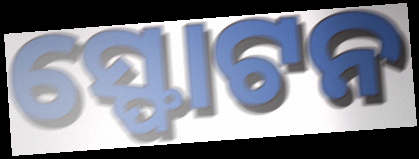
ସ୍ଫୋଟନ